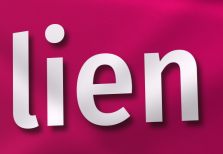
lien